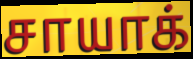
சாயாக்